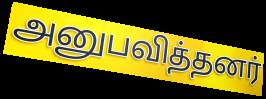
அனுபவித்தனர்